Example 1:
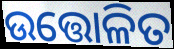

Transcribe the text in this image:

ଉତ୍ତୋଳିତ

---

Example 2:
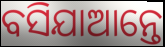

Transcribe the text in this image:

ବସିଯାଆନ୍ତେ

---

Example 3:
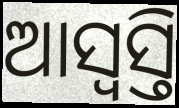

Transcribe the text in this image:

ଆସ୍ୱସ୍ତି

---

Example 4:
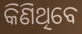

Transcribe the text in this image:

କିଣିଥିବେ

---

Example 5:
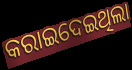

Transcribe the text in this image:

କରାଇଦେଇଥିଲା